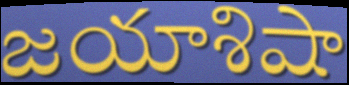
జయాశిషా